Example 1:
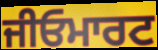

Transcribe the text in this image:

ਜੀਓਮਾਰਟ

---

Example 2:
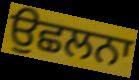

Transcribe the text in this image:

ਉਛਲਨਾ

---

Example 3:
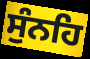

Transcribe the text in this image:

ਸੁੰਨਹਿ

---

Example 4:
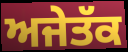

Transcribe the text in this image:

ਅਜੇਤੱਕ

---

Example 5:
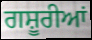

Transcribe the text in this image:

ਗਸ਼ੂਰੀਆਂ